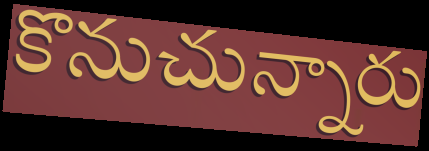
కొనుచున్నారు